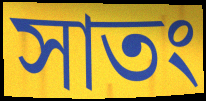
সাতং